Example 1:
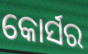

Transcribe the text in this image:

କୋର୍ସର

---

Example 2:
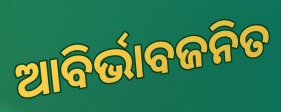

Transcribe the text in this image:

ଆବିର୍ଭାବଜନିତ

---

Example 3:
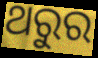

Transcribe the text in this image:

ଥରୁର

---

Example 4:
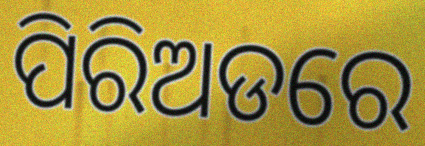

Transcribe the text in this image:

ପିରିଅଡରେ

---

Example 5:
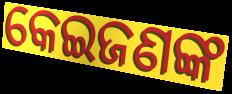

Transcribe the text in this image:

କେଇଜଣଙ୍କ